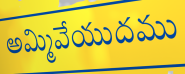
అమ్మివేయుదము